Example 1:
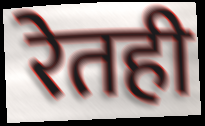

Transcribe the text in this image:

रेतही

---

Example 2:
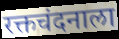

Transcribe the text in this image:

रक्तचंदनाला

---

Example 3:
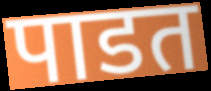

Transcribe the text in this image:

पाडत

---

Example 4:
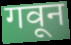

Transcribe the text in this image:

गवून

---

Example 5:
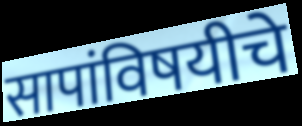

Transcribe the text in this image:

सापांविषयीचे